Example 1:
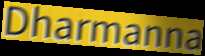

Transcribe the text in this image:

Dharmanna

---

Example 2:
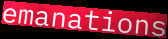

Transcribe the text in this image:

emanations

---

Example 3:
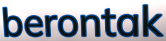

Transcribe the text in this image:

berontak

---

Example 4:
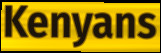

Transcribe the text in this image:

Kenyans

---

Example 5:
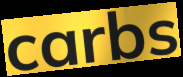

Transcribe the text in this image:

carbs